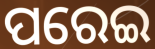
ପରେଇ